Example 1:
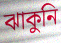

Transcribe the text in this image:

ঝাকুনি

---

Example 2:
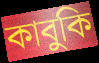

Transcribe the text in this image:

কাবুকি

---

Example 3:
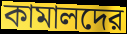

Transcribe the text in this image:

কামালদের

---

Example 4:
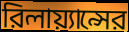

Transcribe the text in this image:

রিলায়্যান্সের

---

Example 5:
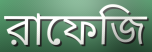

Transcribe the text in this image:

রাফেজি